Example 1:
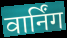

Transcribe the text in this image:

वार्निंग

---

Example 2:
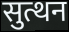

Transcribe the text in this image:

सुत्थन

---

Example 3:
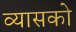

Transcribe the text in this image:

व्यासको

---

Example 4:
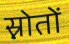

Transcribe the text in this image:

स्नोतों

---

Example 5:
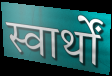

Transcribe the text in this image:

स्वार्थों